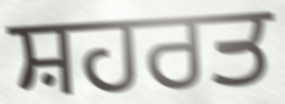
ਸ਼ਹਰਤ